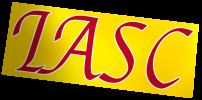
IASC